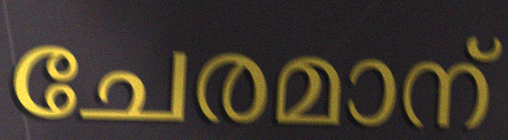
ചേരമാന്